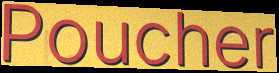
Poucher